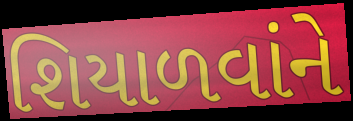
શિયાળવાંને